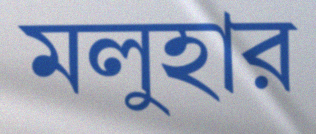
মলুহার